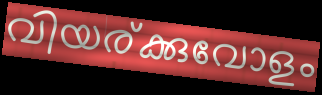
വിയര്ക്കുവോളം